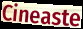
Cineaste